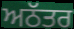
ਅਠੱਤਰ